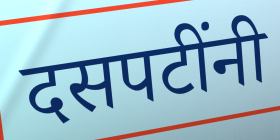
दसपटींनी